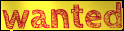
wanted